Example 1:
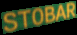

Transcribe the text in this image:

STOBAR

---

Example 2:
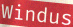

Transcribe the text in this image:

Windus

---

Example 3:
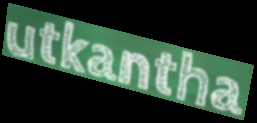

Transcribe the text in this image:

utkantha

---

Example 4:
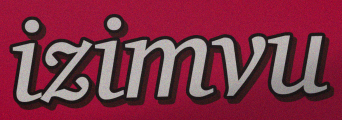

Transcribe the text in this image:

izimvu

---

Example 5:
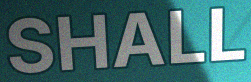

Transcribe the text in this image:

SHALL